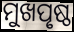
ମୁଖପୃଷ୍ଠ